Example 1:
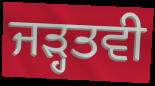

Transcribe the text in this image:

ਜੜ੍ਹਤਵੀ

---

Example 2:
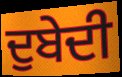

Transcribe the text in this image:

ਦੁਬੇਦੀ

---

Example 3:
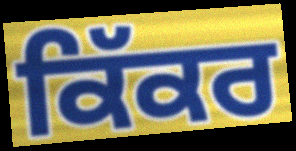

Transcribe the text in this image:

ਕਿੱਕਰ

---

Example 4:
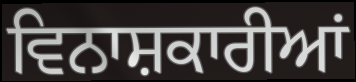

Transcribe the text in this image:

ਵਿਨਾਸ਼ਕਾਰੀਆਂ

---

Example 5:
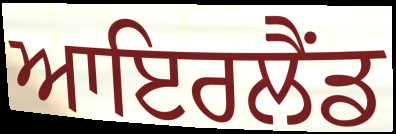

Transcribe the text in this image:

ਆਇਰਲੈੰਡ